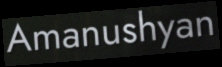
Amanushyan